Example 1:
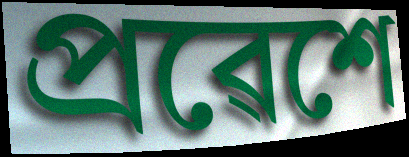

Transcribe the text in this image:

প্ৰৱেশে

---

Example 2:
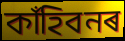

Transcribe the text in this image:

কাঁহিবনৰ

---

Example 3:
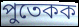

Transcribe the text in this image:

পুতেকক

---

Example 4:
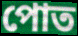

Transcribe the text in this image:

পোত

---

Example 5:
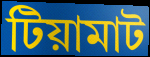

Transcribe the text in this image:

টিয়ামাট